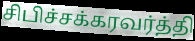
சிபிச்சக்கரவர்த்தி